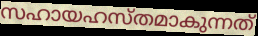
സഹായഹസ്തമാകുന്നത്